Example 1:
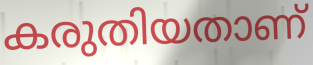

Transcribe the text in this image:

കരുതിയതാണ്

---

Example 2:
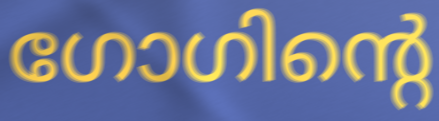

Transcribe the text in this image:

ഗോഗിന്റെ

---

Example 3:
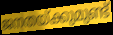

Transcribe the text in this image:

ജനതയ്ക്കുമുണ്ട്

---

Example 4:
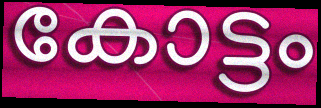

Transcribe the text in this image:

കോട്ടം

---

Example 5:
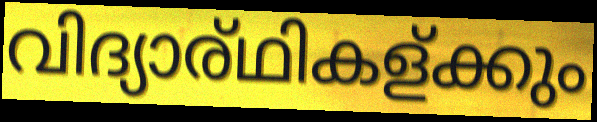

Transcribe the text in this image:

വിദ്യാര്ഥികള്ക്കും